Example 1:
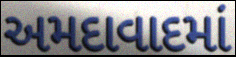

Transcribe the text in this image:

અમદાવાદમાં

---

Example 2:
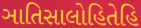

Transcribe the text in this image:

ઞાતિસાલોહિતેહિ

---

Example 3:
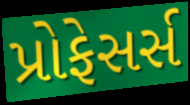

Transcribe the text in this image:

પ્રોફેસર્સ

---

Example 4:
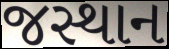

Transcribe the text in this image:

જસ્થાન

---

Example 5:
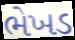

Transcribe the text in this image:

ભેખડ